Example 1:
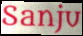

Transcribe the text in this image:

Sanju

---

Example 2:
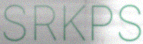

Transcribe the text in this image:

SRKPS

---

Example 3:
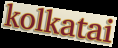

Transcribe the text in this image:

kolkatai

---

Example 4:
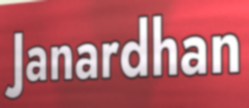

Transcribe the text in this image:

Janardhan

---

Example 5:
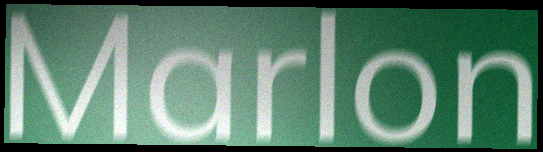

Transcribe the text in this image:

Marlon